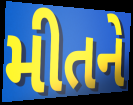
મીતને